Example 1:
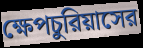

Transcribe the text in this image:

ক্ষেপচুরিয়াসের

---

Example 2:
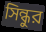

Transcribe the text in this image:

সিন্ধুর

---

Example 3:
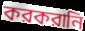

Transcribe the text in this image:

করকরানি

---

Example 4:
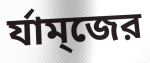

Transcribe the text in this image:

র্যাম্জের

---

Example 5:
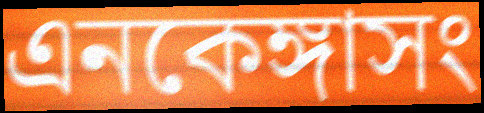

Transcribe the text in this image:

এনকেঙ্গাসং